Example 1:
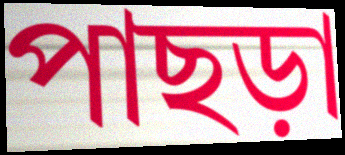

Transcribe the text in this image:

পাছড়া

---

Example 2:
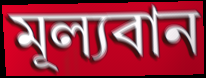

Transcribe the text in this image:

মূল্যবান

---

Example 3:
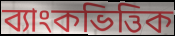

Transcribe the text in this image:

ব্যাংকভিত্তিক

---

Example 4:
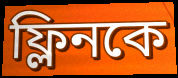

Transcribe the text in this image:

ফ্লিনকে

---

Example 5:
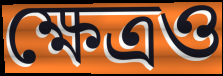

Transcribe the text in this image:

ক্ষেত্রও